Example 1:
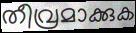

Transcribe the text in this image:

തീവ്രമാക്കുക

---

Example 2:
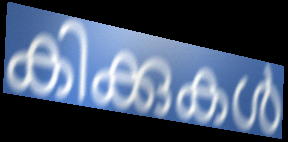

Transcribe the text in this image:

കിക്കുകൾ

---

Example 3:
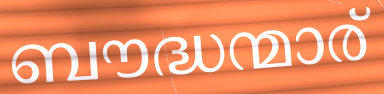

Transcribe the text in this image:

ബൗദ്ധന്മാര്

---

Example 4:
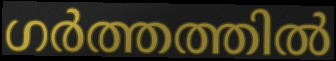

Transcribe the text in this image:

ഗർത്തത്തിൽ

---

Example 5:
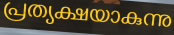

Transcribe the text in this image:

പ്രത്യക്ഷയാകുന്നു